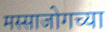
मस्साजोगच्या